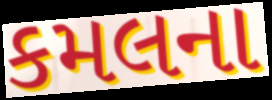
કમલના